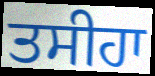
ਤਸੀਹਾ